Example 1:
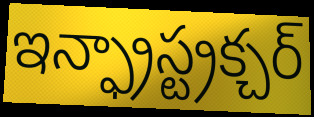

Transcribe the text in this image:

ఇన్ఫ్రాస్ట్రక్చర్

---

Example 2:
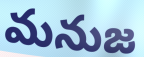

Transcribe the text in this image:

మనుజ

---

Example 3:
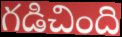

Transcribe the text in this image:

గడిచింది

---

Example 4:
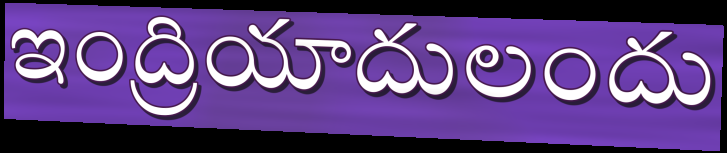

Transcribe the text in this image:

ఇంద్రియాదులందు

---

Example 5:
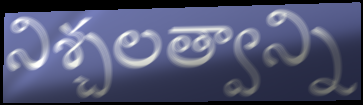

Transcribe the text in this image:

నిశ్చలత్వాన్ని